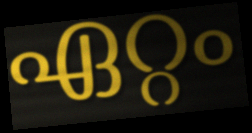
ഏറ്റം